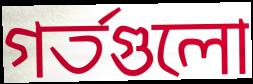
গর্তগুলো